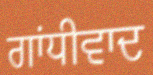
ਗਾਂਧੀਵਾਦ